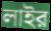
লাইর